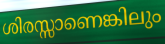
ശിരസ്സാണെങ്കിലും